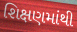
શિક્ષણમાંથી